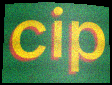
cip